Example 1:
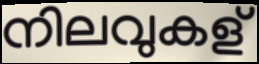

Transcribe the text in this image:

നിലവുകള്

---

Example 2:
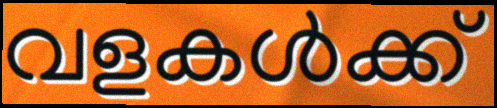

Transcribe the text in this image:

വളകൾക്ക്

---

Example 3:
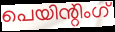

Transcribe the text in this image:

പെയിന്റിംഗ്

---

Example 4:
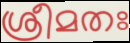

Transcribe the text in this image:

ശ്രീമതഃ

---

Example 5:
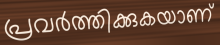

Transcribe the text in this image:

പ്രവർത്തിക്കുകയാണ്